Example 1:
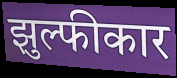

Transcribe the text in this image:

झुल्फीकार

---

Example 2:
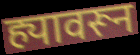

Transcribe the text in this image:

ह्यावरून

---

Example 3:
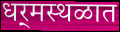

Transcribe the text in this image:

धर्मस्थळात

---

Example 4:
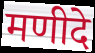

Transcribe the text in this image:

मणीदे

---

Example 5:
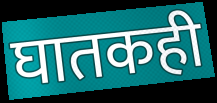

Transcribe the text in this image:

घातकही